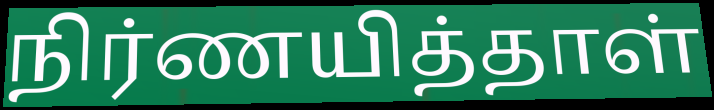
நிர்ணயித்தாள்